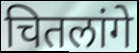
चितलांगे